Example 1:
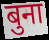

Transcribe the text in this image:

बुना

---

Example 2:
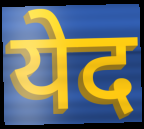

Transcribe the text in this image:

येद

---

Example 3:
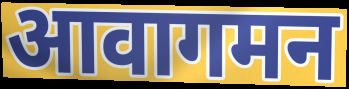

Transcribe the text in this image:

आवागमन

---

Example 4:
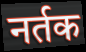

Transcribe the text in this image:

नर्तक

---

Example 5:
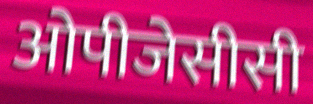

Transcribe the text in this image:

ओपीजेसीसी